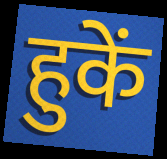
हुकें